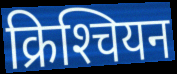
क्रिश्‍चियन